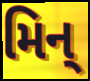
મિન્